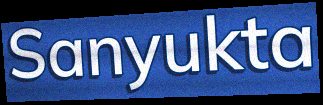
Sanyukta